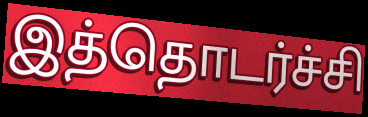
இத்தொடர்ச்சி